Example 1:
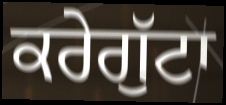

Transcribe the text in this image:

ਕਰੇਗੁੱਟਾ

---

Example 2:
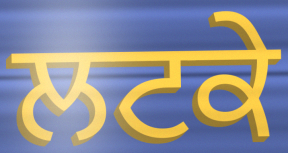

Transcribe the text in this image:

ਲਟਕੇ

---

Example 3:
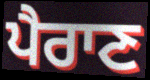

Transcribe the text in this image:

ਪੈਰਾਣ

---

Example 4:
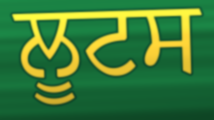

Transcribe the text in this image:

ਲੂਟਸ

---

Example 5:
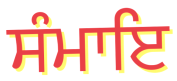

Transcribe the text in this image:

ਸੰਮਾਇ